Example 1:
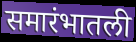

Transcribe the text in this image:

समारंभातली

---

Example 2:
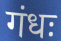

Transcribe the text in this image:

गंधः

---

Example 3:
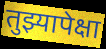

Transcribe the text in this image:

तुझ्यापेक्षा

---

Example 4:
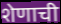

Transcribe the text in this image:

शेणाची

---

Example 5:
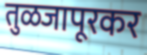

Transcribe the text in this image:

तुळजापूरकर